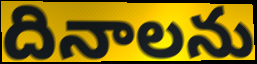
దినాలను